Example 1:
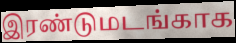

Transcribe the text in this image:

இரண்டுமடங்காக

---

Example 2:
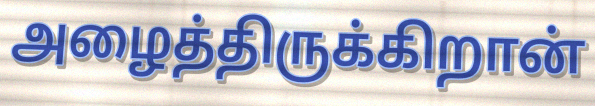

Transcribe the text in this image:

அழைத்திருக்கிறான்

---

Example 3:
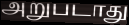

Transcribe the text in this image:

அறுபடாது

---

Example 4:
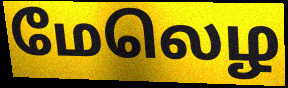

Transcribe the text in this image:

மேலெழ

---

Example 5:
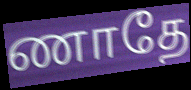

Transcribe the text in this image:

ணாதே